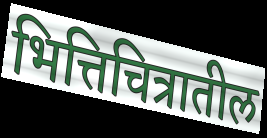
भित्तिचित्रातील